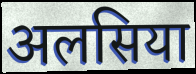
अलसिया